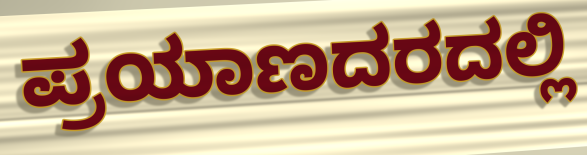
ಪ್ರಯಾಣದರದಲ್ಲಿ